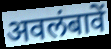
अवलंबावें